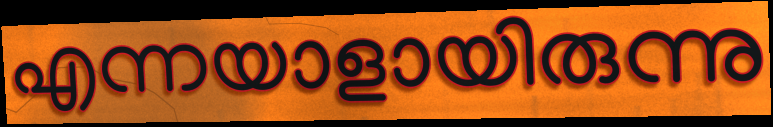
എന്നയാളായിരുന്നു